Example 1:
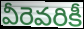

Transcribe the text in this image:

వీరెవరికీ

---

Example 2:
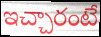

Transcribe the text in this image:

ఇచ్చారంటే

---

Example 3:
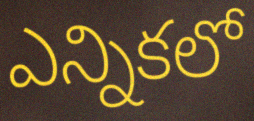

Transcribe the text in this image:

ఎన్నికలో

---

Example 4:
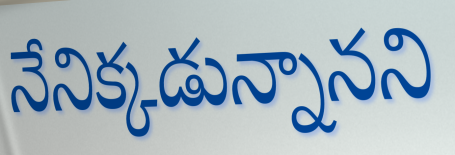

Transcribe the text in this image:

నేనిక్కడున్నానని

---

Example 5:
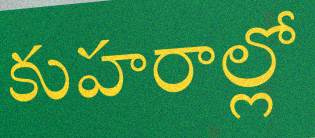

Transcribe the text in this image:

కుహరాల్లో